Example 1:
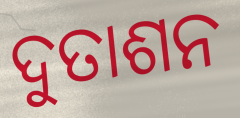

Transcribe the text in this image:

ଦୁତାଶନ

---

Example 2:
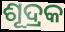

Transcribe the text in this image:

ଶୂଦ୍ରକ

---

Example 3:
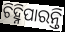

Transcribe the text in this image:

ଚିହ୍ନିପାରନ୍ତି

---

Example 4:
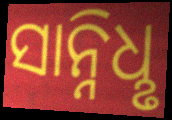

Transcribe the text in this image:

ସାନ୍ନିଧୢ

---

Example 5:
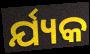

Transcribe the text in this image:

ର୍ଯ୍ୟକ